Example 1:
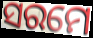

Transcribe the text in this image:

ସରମେ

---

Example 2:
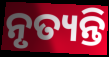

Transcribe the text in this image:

ନୃତ୍ୟନ୍ତି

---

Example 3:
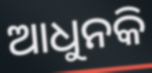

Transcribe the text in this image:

ଆଧୁନକି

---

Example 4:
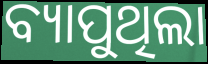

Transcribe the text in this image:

ବ୍ୟାପୁଥିଲା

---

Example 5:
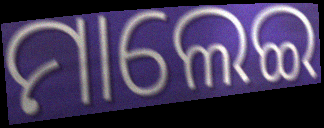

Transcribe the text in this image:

ମାଲେଇ